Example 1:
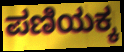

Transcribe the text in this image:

ಪಣಿಯಕ್ಕ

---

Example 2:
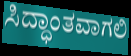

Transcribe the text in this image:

ಸಿದ್ಧಾಂತವಾಗಲಿ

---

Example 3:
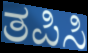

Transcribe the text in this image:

ತಪಿಸಿ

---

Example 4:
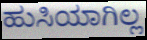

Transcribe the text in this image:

ಹುಸಿಯಾಗಿಲ್ಲ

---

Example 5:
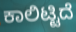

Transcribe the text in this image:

ಕಾಲಿಟ್ಟಿದೆ